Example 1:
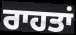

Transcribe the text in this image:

ਰਾਹਤਾਂ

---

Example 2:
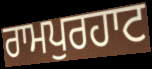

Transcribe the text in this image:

ਰਾਮਪੁਰਹਾਟ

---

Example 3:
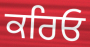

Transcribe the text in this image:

ਕਰਿਓ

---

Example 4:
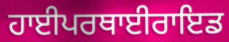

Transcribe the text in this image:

ਹਾਈਪਰਥਾਈਰਾਇਡ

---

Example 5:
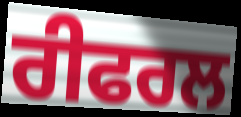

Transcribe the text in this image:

ਰੀਫਰਲ